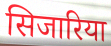
सिजारिया